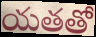
యతతో